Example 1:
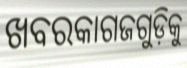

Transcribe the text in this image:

ଖବରକାଗଜଗୁଡ଼ିକୁ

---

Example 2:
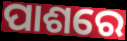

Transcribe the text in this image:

ପାଶରେ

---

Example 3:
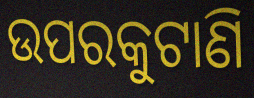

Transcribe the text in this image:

ଉପରକୁଟାଣି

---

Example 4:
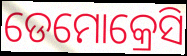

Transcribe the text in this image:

ଡେମୋକ୍ରେସି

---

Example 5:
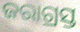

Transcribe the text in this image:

ଜରାଗ୍ରସ୍ତ